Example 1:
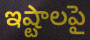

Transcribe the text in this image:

ఇష్టాలపై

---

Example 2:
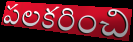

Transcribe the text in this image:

పలకరించి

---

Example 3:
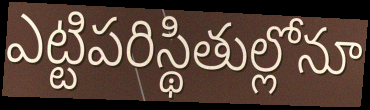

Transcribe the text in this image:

ఎట్టిపరిస్థితుల్లోనూ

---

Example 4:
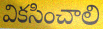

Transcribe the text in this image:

వికసించాలి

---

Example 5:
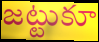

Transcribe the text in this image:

జట్టుకూ